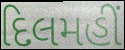
દિલમહીં